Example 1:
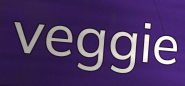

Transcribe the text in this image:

veggie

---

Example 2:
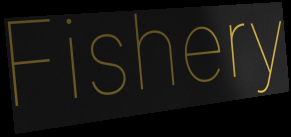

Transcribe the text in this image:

Fishery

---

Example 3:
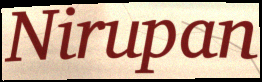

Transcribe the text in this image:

Nirupan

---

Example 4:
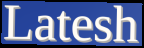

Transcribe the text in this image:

Latesh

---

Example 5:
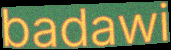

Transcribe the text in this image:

badawi